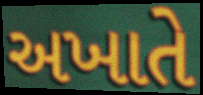
અખાતે